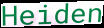
Heiden